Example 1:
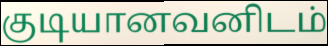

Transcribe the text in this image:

குடியானவனிடம்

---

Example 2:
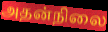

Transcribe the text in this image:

அதன்நிலை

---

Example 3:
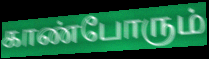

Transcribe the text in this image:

காண்போரும்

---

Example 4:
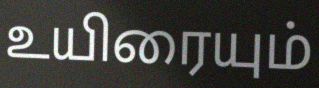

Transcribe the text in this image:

உயிரையும்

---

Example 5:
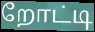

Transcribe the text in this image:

றோட்டி